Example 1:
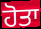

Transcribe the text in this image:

ਹੋਤਾ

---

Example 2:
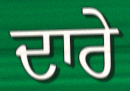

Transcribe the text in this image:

ਦਾਰੇ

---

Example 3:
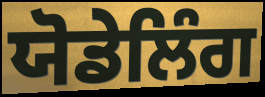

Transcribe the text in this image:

ਯੋਡੇਲਿੰਗ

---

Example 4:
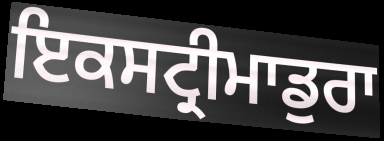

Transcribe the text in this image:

ਇਕਸਟ੍ਰੀਮਾਡੁਰਾ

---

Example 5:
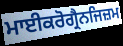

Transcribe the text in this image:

ਮਾਈਕਰੋਗ੍ਰੈਨਜਿਜ਼ਮ